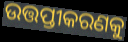
ଉତ୍ତପ୍ତୀକରଣକୁ